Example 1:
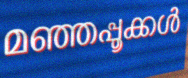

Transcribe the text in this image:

മഞ്ഞപ്പൂക്കൾ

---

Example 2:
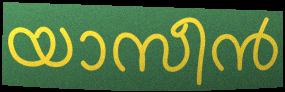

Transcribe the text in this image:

യാസീൻ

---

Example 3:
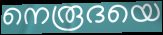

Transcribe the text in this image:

നെരൂദയെ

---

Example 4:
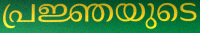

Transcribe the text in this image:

പ്രജ്ഞയുടെ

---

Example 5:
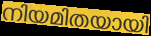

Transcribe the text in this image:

നിയമിതയായി